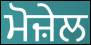
ਮੋਜ਼ੇਲ